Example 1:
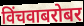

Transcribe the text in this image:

विंचवाबरोबर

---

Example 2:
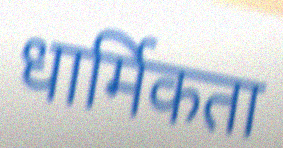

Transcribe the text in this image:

धार्मिकता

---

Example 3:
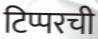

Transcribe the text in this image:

टिप्परची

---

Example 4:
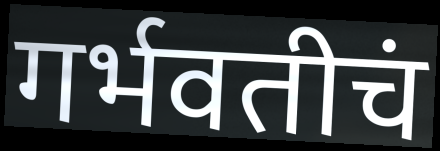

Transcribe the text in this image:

गर्भवतीचं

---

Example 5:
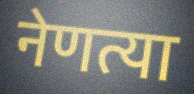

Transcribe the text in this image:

नेणत्या